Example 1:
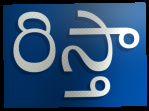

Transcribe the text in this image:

రిస్తా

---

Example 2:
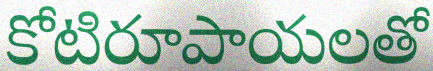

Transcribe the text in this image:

కోటిరూపాయలతో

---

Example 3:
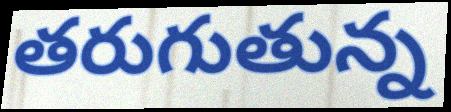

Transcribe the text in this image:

తరుగుతున్న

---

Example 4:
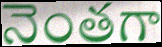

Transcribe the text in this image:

నెంతగా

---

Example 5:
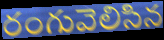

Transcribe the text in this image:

రంగువెలిసిన